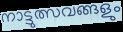
നാട്ടുത്സവങ്ങളും